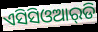
ଏସିସିଓଆର୍‌ଡି